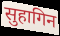
सुहागिन